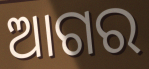
ଆଗର